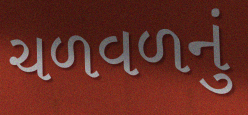
ચળવળનું